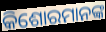
କିଶୋରମାନଙ୍କ